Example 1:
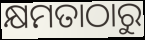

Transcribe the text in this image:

କ୍ଷମତାଠାରୁ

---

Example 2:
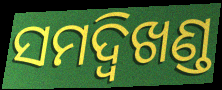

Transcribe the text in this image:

ସମଦ୍ବିଖଣ୍ଡ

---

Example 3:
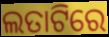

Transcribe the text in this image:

ଲତାଟିରେ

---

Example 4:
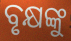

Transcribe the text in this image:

ବୃକ୍ଷଙ୍କୁ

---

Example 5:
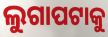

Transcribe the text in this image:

ଲୁଗାପଟାକୁ